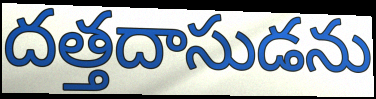
దత్తదాసుడను